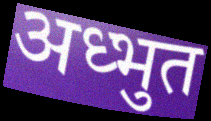
अध्भुत